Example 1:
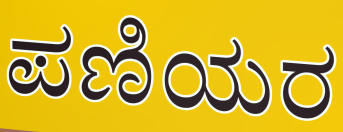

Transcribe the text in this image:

ಪಣಿಯರ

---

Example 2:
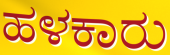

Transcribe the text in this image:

ಹಳಕಾರು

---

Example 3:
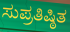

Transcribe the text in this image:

ಸುಪ್ರತಿಷ್ಠಿತ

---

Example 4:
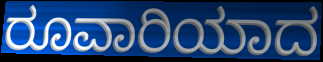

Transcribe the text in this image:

ರೂವಾರಿಯಾದ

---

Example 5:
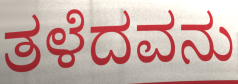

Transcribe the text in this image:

ತಳೆದವನು